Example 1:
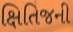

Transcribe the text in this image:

ક્ષિતિજની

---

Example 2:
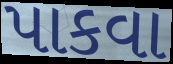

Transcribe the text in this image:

પાકવા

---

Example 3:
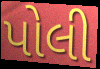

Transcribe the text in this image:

પોલી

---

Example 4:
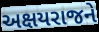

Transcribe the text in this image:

અક્ષયરાજને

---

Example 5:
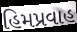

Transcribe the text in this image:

હિમપ્રવાહ